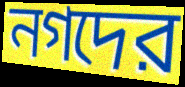
নগদের